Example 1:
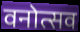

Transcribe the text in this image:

वनोत्सव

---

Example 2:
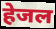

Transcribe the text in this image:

हेजल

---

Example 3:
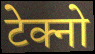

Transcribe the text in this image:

टेक्नो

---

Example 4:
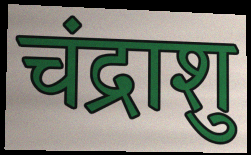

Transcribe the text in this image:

चंद्राशु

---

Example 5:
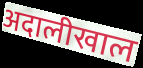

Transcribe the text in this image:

अदालीखाल